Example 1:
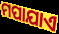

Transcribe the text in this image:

ମପାଯାଏ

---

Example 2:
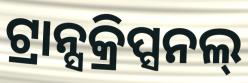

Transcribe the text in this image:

ଟ୍ରାନ୍ସକ୍ରିପ୍ସନଲ୍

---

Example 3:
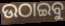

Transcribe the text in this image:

ଉଠାଇବୁ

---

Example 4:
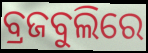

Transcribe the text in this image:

ବ୍ରଜବୁଲିରେ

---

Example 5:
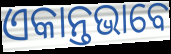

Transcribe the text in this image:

ଏକାନ୍ତଭାବେ